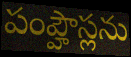
పంప్హౌస్లను